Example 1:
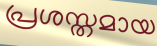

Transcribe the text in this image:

പ്രശസ്തമായ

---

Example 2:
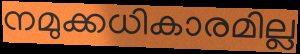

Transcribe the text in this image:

നമുക്കധികാരമില്ല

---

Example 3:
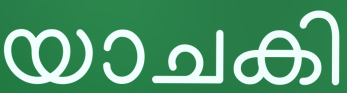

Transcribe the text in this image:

യാചകി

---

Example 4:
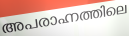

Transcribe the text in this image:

അപരാഹ്നത്തിലെ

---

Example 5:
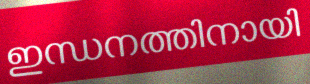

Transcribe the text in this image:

ഇന്ധനത്തിനായി